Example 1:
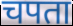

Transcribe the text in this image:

चपता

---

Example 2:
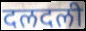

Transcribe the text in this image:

दलदली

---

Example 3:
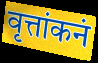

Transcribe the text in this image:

वृत्तांकनं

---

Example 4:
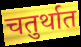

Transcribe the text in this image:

चतुर्थात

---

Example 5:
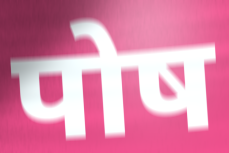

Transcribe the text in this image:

पोष